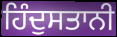
ਹਿੰਦੁਸਤਾਨੀ